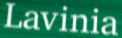
Lavinia